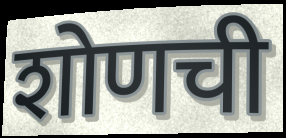
शोणची